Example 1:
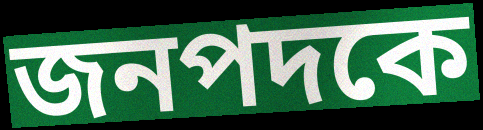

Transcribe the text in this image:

জনপদকে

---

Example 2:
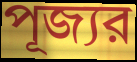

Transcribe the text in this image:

পূজ্যর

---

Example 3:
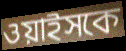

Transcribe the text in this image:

ওয়াইসকে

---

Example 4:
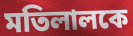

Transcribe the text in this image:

মতিলালকে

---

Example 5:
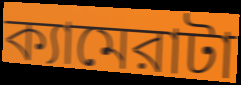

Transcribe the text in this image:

ক্যামেরাটা